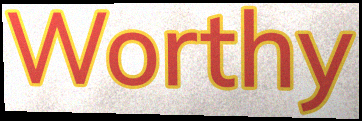
Worthy